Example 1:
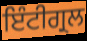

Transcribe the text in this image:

ਇੰਟੀਗ੍ਰਲ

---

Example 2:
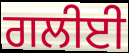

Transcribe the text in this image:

ਗਲੀਈ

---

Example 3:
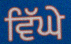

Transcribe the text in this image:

ਵਿੱਘੇ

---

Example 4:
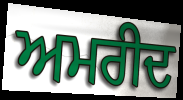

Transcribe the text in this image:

ਅਮਰੀਦ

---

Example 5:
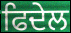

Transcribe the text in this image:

ਫਿਦੇਲ